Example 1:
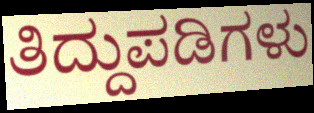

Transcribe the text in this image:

ತಿದ್ದುಪಡಿಗಳು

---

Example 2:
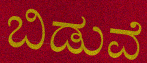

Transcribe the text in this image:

ಬಿಡುವೆ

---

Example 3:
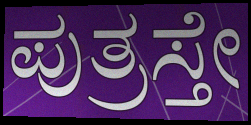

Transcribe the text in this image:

ಪುತ್ರಸ್ತೇ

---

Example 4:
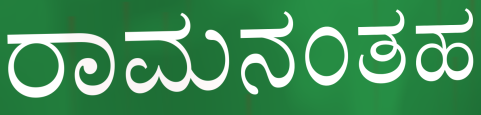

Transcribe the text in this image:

ರಾಮನಂತಹ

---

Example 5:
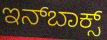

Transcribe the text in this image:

ಇನ್‍ಬಾಕ್ಸ್